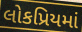
લોકપ્રિયમાં